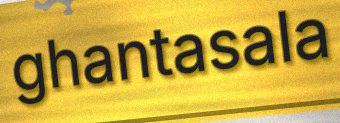
ghantasala